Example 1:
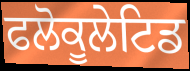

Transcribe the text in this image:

ਫਲੋਕੂਲੇਟਿਡ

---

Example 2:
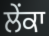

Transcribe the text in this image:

ਲੇਂਕਾ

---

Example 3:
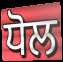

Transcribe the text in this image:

ਧੋਲ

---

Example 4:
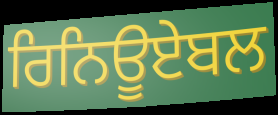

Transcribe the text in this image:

ਰਿਨਿਊਏਬਲ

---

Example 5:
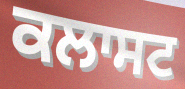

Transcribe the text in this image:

ਕਲਾਸਟ